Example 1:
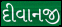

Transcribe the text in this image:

દીવાનજી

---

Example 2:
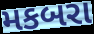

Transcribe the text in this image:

મકબરા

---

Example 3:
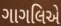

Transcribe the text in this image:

ગાગલિએ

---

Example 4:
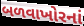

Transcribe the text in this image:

બળવાખોરનાં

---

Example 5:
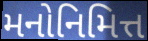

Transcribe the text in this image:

મનોનિમિત્ત